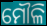
ମୌଳି